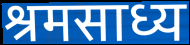
श्रमसाध्य